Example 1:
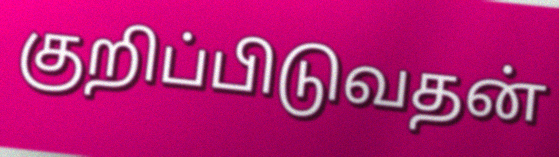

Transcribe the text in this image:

குறிப்பிடுவதன்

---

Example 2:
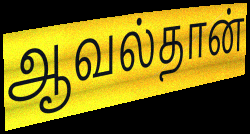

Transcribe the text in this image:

ஆவல்தான்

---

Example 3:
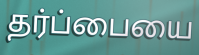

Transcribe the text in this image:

தர்ப்பையை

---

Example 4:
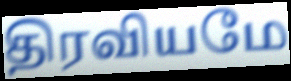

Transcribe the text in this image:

திரவியமே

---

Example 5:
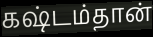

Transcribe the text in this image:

கஷ்டம்தான்